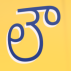
లౌ